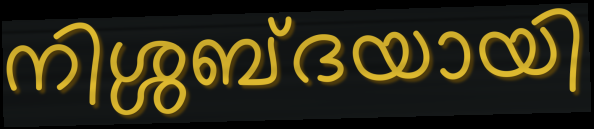
നിശ്ശബ്ദയായി